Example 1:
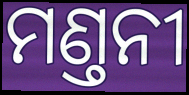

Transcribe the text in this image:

ମଣ୍ତନୀ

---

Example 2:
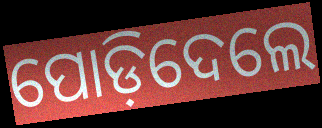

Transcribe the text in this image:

ପୋଡ଼ିଦେଲେ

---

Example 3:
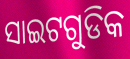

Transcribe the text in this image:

ସାଇଟଗୁଡିକ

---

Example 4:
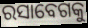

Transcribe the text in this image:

ରସାବେଗକୁ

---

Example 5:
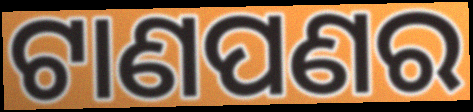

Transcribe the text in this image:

ଟାଣପଣର